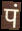
पं